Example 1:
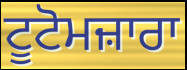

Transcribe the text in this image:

ਟੂਟੋਮਜ਼ਾਰਾ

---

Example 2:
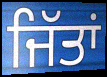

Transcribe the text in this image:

ਜਿੱਤਾਂ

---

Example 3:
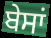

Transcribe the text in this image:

ਬੇਸਾਂ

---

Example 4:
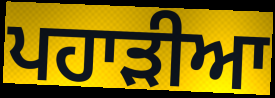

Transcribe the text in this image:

ਪਹਾੜੀਆ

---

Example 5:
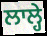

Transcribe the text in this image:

ਲਾਲ੍ਹੇ